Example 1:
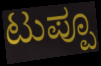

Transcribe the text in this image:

ಟುಪ್ಪೂ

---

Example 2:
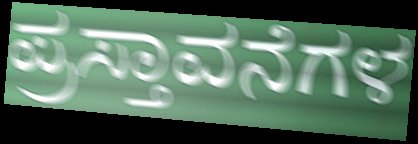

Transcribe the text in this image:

ಪ್ರಸ್ತಾವನೆಗಳ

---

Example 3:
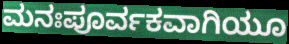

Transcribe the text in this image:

ಮನಃಪೂರ್ವಕವಾಗಿಯೂ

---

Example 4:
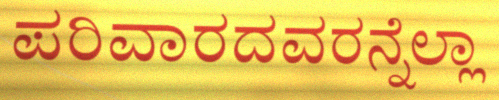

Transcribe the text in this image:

ಪರಿವಾರದವರನ್ನೆಲ್ಲಾ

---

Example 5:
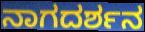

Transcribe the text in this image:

ನಾಗದರ್ಶನ